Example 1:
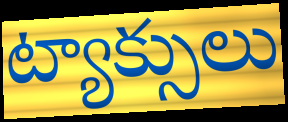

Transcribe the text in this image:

ట్యాక్సులు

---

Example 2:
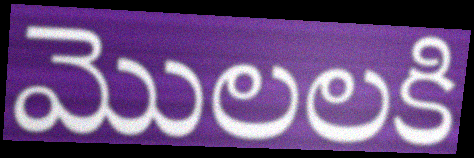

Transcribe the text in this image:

మొలలకి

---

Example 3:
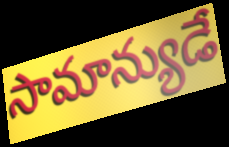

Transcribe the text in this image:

సామాన్యుడే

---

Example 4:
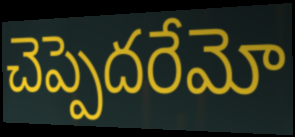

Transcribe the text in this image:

చెప్పెదరేమో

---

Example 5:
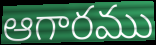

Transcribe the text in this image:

ఆగారము